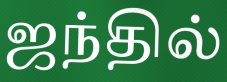
ஜந்தில்